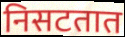
निसटतात